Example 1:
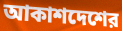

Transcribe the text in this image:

আকাশদেশের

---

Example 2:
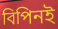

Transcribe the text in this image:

বিপিনই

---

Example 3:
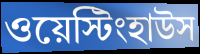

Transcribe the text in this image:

ওয়েস্টিংহাউস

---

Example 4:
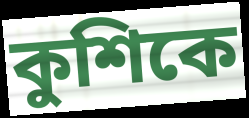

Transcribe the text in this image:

কুশিকে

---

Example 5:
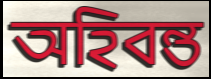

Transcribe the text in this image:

অহিবন্ত